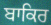
ਬਾਕਿਰ